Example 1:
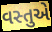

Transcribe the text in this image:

વસ્તુએ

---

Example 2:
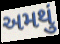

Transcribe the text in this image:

અમથું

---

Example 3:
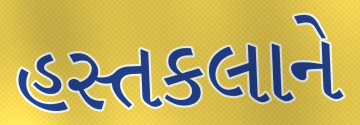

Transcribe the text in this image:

હસ્તકલાને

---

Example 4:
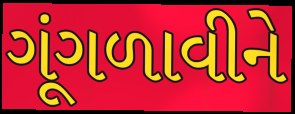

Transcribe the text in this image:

ગૂંગળાવીને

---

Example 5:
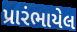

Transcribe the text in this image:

પ્રારંભાયેલ